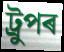
ট্ৰুপৰ